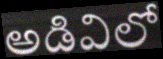
అడివిలో